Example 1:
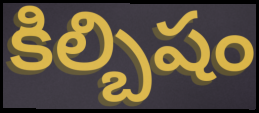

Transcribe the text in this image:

కిల్బిషం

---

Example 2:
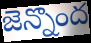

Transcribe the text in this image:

జెన్నొంద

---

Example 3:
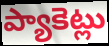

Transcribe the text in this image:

ప్యాకెట్లు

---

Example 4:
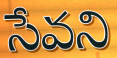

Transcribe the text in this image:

సేవని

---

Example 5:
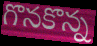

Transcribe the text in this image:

గొనకొన్న